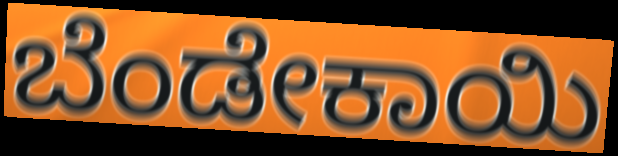
ಬೆಂಡೇಕಾಯಿ